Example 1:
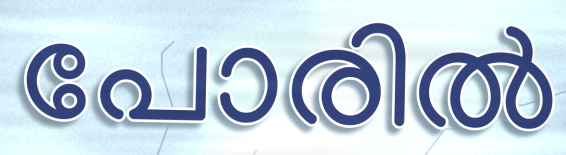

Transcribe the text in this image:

പോരിൽ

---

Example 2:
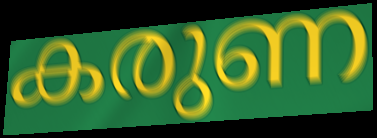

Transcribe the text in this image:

കരുണ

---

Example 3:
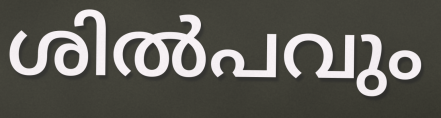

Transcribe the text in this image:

ശിൽപവും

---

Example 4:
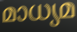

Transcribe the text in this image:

മാധ്യമ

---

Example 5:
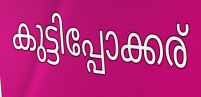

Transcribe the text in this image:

കുട്ടിപ്പോക്കര്